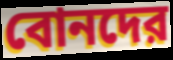
বোনদের